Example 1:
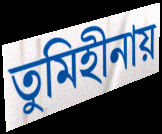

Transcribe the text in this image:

তুমিহীনায়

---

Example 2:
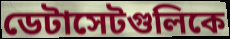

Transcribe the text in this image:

ডেটাসেটগুলিকে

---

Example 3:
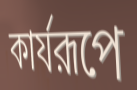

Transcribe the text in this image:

কার্যরূপে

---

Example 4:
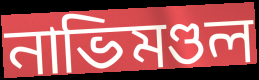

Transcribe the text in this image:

নাভিমণ্ডল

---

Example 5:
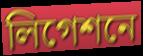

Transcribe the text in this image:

লিগেশনে